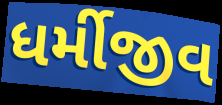
ધર્મીજીવ